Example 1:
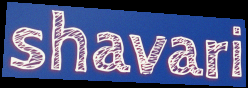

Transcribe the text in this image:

shavari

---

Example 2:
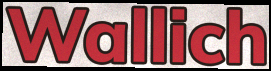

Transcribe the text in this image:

Wallich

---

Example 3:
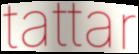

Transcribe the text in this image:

tattar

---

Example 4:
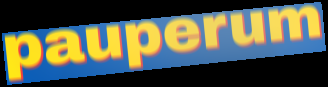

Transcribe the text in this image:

pauperum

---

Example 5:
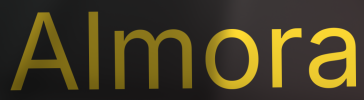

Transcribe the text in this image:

Almora